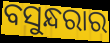
ବସୁନ୍ଧରାର